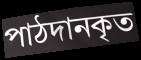
পাঠদানকৃত